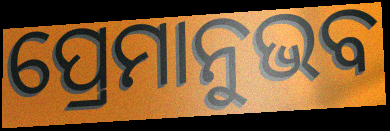
ପ୍ରେମାନୁଭବ